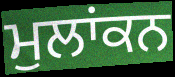
ਮੁਲਾਂਕਨ